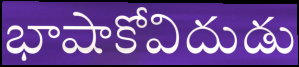
భాషాకోవిదుడు